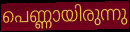
പെണ്ണായിരുന്നു